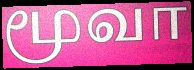
மூவா